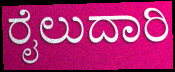
ರೈಲುದಾರಿ